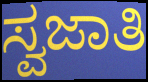
ಸ್ವಜಾತಿ